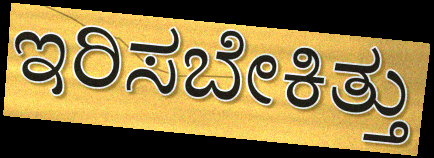
ಇರಿಸಬೇಕಿತ್ತು